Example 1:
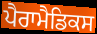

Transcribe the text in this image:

ਪੈਰਾਮੈਡਿਕਸ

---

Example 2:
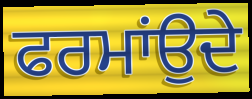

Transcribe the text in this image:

ਫਰਮਾਂਉਦੇ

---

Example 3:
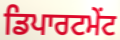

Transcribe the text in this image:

ਡਿਪਾਰਟਮੇਂਟ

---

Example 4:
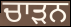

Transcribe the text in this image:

ਚਾੜਨ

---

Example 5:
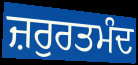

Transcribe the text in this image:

ਜ਼ਰੁਰਤਮੰਦ